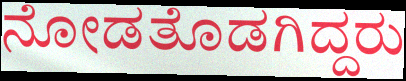
ನೋಡತೊಡಗಿದ್ದರು